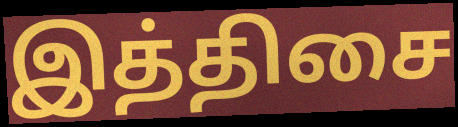
இத்திசை